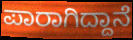
ಪಾರಾಗಿದ್ದಾನೆ